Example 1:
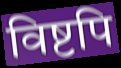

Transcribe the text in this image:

विष्टपि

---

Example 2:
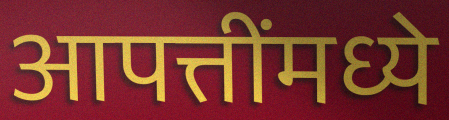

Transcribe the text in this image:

आपत्तींमध्ये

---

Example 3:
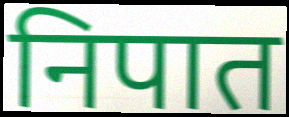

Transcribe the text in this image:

निपात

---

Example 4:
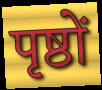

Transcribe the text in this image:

पृष्ठों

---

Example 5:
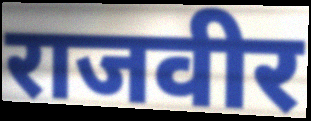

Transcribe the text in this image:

राजवीर